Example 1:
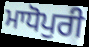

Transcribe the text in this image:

ਮਾਧੋਪੁਰੀ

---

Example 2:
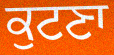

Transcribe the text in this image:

ਕੁਟਣਾ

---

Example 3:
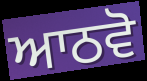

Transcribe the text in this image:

ਆਠਵੋ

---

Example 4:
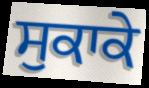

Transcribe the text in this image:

ਸੁਕਾਕੇ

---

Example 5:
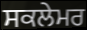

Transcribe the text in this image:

ਸਕਲੇਮਰ